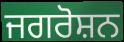
ਜਗਰੋਸ਼ਨ